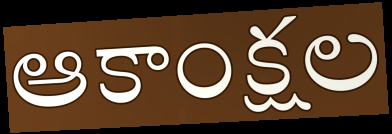
ఆకాంక్షల